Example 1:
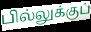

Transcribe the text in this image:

பில்லுக்குப்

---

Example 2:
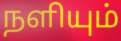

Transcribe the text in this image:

நளியும்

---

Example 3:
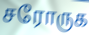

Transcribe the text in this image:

சரோருக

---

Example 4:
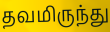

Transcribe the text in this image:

தவமிருந்து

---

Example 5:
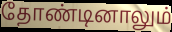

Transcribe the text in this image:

தோண்டினாலும்